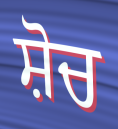
ਸ਼ੋਚ